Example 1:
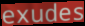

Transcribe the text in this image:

exudes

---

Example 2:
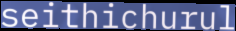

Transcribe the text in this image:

seithichurul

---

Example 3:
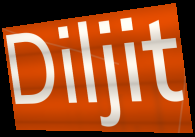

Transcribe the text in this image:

Diljit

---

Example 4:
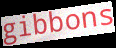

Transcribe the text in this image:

gibbons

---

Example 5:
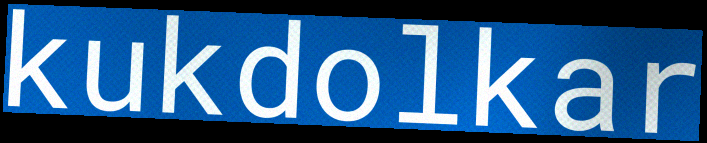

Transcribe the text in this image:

kukdolkar